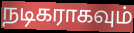
நடிகராகவும்